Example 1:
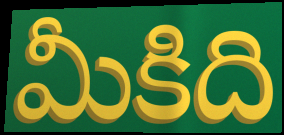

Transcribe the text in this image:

మీకిది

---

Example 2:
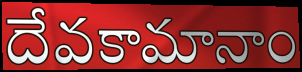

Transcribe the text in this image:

దేవకామానాం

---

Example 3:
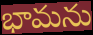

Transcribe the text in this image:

భామను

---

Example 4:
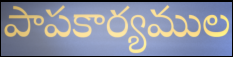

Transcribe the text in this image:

పాపకార్యముల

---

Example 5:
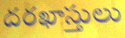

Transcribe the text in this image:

దరఖాస్తులు